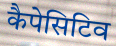
कैपेसिटिव